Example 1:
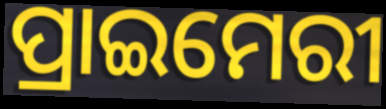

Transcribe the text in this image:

ପ୍ରାଇମେରୀ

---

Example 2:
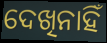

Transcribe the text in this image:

ଦେଖିନାହିଁ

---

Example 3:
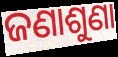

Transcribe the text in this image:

ଜଣାଶୁଣା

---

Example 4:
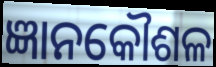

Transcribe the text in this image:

ଜ୍ଞାନକୌଶଳ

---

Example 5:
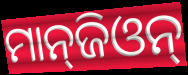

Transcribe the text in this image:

ମାନ୍‌ଜିଓନ୍